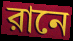
রানে